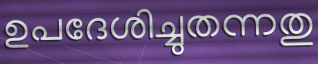
ഉപദേശിച്ചുതന്നതു